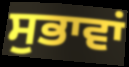
ਸੁਭਾਵਾਂ